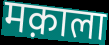
मक़ाला